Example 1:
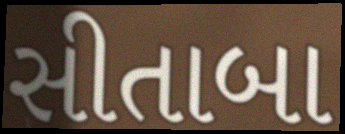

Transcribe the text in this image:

સીતાબા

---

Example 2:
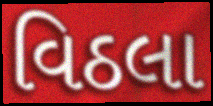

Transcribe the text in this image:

વિઠલા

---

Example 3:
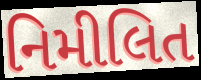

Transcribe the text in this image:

નિમીલિત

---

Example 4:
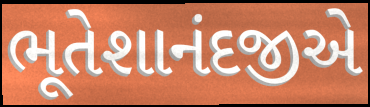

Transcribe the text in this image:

ભૂતેશાનંદજીએ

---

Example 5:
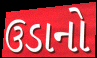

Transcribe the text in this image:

ઉડાનો